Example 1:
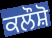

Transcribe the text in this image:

ਕਲੌਸ਼ੋ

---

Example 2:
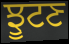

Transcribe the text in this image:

ਝੂਟਣ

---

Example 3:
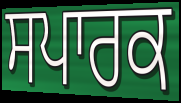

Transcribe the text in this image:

ਸਪਾਰਕ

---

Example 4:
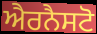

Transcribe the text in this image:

ਐਰਨੈਸਟੋ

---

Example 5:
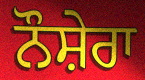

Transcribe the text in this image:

ਨੌਸ਼ੇਰਾ